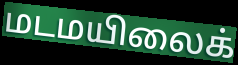
மடமயிலைக்